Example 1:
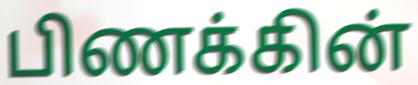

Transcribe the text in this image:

பிணக்கின்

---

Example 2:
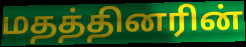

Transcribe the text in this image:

மதத்தினரின்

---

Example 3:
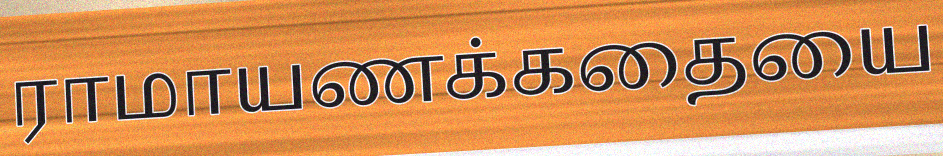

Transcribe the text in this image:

ராமாயணக்கதையை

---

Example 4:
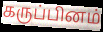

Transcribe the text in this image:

கருப்பினம்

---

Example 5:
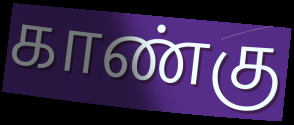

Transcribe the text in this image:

காண்கு